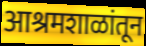
आश्रमशाळांतून